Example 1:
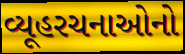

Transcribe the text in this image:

વ્યૂહરચનાઓનો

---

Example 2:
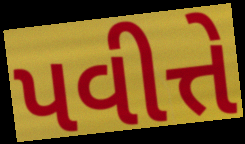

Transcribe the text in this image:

પવીત્તે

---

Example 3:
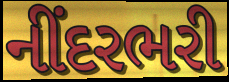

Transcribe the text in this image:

નીંદરભરી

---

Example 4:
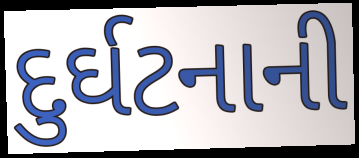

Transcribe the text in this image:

દુર્ઘટનાની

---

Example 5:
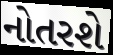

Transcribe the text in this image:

નોતરશે